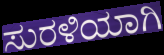
ಸುರಳಿಯಾಗಿ